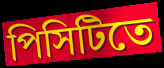
পিসিটিতে